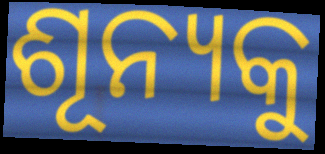
ଶୂନ୍ୟକୁ